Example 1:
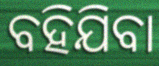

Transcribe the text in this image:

ବହିଯିବା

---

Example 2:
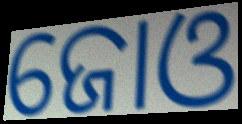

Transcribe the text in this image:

ଜୋଓ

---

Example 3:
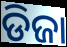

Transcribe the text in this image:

ଡିଜା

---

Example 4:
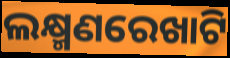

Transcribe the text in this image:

ଲକ୍ଷ୍ମଣରେଖାଟି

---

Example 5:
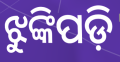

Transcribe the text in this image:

ଝୁଙ୍କିପଡ଼ି